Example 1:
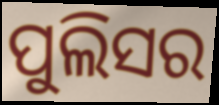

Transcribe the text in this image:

ପୁଲିସର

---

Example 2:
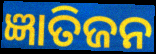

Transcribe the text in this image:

ଜ୍ଞାତିଜନ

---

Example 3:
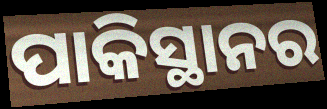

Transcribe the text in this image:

ପାକିସ୍ଥାନର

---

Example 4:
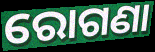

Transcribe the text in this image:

ରୋଗଣା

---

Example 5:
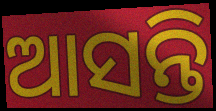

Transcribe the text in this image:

ଆସନ୍ତି